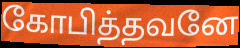
கோபித்தவனே